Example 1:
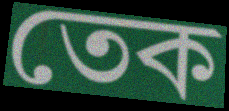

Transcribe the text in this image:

তেক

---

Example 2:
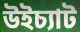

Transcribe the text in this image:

উইচ্যাট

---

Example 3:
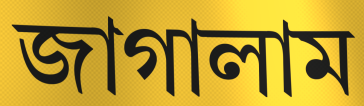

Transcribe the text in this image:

জাগালাম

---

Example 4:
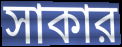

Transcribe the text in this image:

সাকার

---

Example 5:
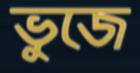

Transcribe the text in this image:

ভুজে